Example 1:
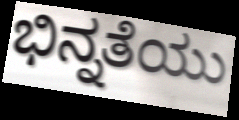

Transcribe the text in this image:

ಭಿನ್ನತೆಯು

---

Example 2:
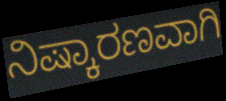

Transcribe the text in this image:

ನಿಷ್ಕಾರಣವಾಗಿ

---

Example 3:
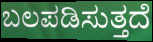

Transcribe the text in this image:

ಬಲಪಡಿಸುತ್ತದೆ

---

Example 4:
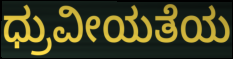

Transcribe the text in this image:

ಧ್ರುವೀಯತೆಯ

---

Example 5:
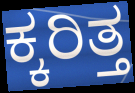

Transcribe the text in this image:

ಕ್ಕರಿತ್ತ